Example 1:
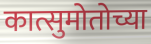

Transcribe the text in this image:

कात्सुमोतोच्या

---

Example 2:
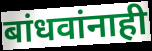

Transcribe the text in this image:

बांधवांनाही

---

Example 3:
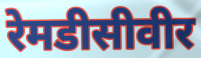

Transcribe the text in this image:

रेमडीसीवीर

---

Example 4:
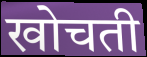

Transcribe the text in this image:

खोचती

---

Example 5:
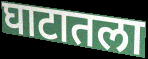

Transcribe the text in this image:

घाटातला